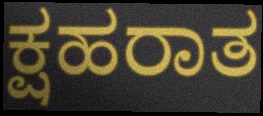
ಕ್ಷಹರಾತ